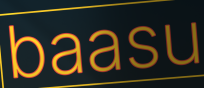
baasu